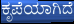
ಕೃಪೆಯಾಗಿದೆ